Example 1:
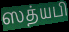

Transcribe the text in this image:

ஸத்யபி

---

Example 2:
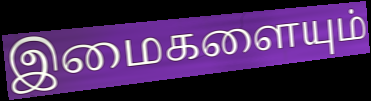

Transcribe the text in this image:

இமைகளையும்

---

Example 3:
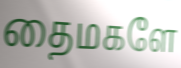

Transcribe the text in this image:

தைமகளே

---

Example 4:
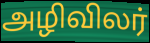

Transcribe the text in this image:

அழிவிலர்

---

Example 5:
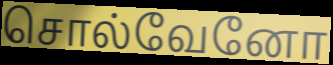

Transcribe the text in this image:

சொல்வேனோ